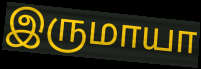
இருமாயா